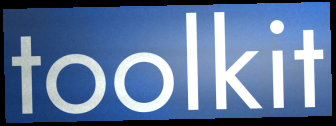
toolkit